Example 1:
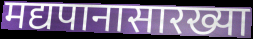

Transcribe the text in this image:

मद्यपानासारख्या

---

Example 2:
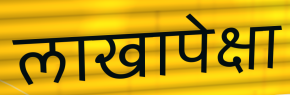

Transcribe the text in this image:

लाखापेक्षा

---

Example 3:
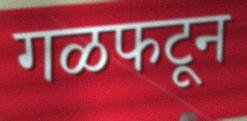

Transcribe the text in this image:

गळफटून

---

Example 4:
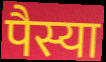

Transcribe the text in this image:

पैस्या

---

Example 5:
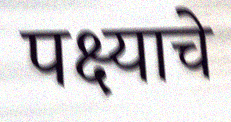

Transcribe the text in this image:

पक्ष्याचे